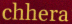
chhera